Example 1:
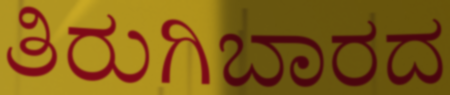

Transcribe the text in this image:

ತಿರುಗಿಬಾರದ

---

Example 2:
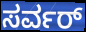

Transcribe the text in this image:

ಸರ್ವರ್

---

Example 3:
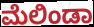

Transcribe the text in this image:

ಮೆಲಿಂಡಾ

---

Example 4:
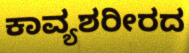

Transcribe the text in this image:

ಕಾವ್ಯಶರೀರದ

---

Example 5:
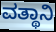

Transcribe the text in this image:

ವತ್ಥಾನಿ